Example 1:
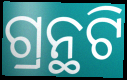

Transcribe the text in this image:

ଗ୍ରନ୍ଥଟି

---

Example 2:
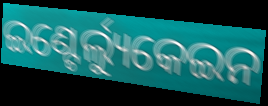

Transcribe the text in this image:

ଇଣ୍ଟେର୍ଲ୍ୟୁକେଇନ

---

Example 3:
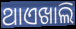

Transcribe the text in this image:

ଥାଏଖାଲି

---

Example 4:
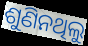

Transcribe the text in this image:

ଶୁଣିନଥିଲୁ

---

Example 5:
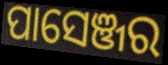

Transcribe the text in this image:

ପାସେଞ୍ଜର